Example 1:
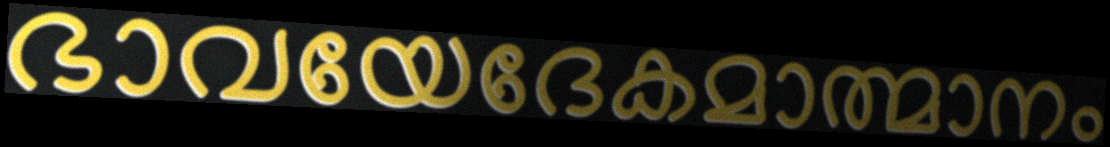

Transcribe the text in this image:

ഭാവയേദേകമാത്മാനം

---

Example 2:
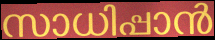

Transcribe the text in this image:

സാധിപ്പാൻ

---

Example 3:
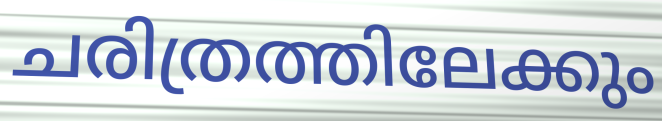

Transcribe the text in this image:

ചരിത്രത്തിലേക്കും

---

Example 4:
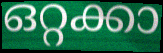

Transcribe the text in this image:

ഒറ്റക്കാ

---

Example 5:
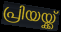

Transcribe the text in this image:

പ്രിയയ്ക്ക്